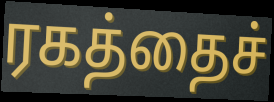
ரகத்தைச்